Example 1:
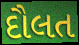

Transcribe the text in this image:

દૌલત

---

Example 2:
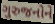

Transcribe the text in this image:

ગુરુજનોને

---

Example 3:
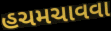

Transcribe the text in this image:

હચમચાવવા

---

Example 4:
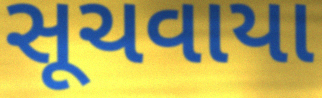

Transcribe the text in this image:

સૂચવાયા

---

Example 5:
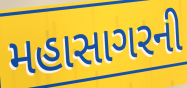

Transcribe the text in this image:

મહાસાગરની